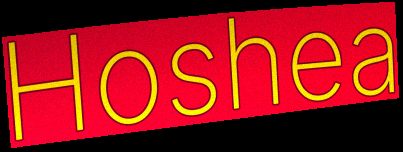
Hoshea